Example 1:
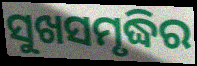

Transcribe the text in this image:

ସୁଖସମୃଦ୍ଧିର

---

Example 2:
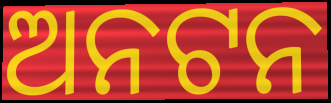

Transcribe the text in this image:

ଅନଟନ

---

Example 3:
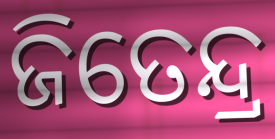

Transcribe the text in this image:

ଜିତେନ୍ଦ୍ର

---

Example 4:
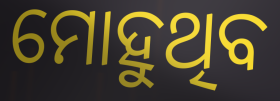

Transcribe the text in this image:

ମୋହୁଥିବ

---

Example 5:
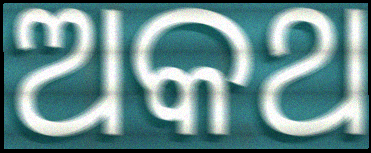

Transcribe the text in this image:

ଅକଥ